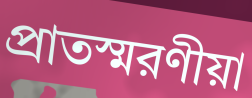
প্রাতস্মরণীয়া